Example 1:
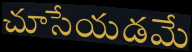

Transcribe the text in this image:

చూసేయడమే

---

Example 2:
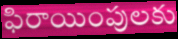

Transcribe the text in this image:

ఫిరాయింపులకు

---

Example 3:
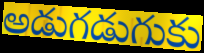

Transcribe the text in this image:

అడుగడుగుకు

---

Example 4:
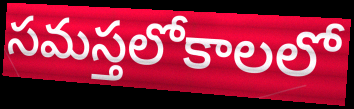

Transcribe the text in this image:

సమస్తలోకాలలో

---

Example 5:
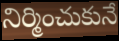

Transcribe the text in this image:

నిర్మించుకునే